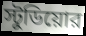
স্টুডিয়োর